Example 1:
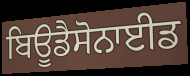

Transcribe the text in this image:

ਬਿਊਡੈਸੋਨਾਈਡ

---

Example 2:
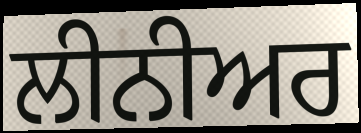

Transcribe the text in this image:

ਲੀਨੀਅਰ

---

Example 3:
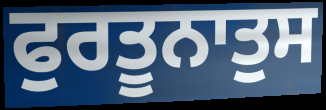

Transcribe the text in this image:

ਫੁਰਤੂਨਾਤੁਸ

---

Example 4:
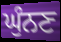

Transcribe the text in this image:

ਘੁੰਨਣ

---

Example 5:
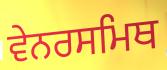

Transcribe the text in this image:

ਵੇਨਰਸਮਿਥ